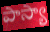
పాస్యా